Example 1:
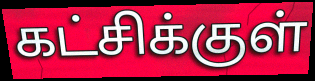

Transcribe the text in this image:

கட்சிக்குள்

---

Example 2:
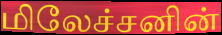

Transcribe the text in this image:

மிலேச்சனின்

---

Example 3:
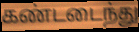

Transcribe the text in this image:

கண்டடைந்து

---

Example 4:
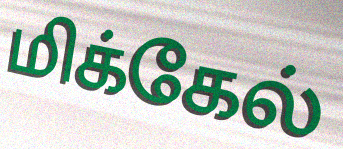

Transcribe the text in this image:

மிக்கேல்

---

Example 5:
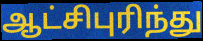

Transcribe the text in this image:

ஆட்சிபுரிந்து